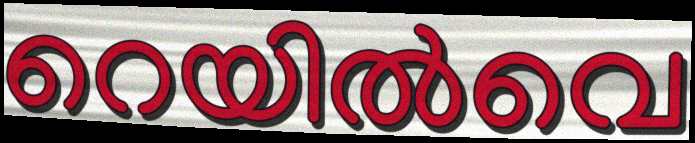
റെയിൽവെ